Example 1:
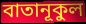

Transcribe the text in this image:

বাতানূকুল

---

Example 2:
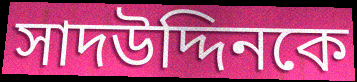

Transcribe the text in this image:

সাদউদ্দিনকে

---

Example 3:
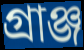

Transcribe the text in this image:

গ্রাঞ্জ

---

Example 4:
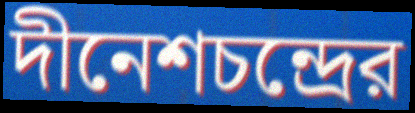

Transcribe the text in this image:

দীনেশচন্দ্রের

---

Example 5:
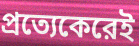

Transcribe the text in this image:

প্রত্যেকেরেই